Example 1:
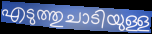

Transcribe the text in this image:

എടുത്തുചാടിയുള്ള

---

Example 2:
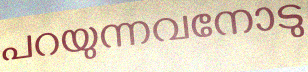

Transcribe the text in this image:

പറയുന്നവനോടു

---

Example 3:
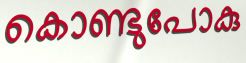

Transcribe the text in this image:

കൊണ്ടുപോകു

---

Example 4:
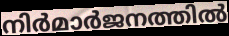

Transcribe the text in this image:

നിർമാർജനത്തിൽ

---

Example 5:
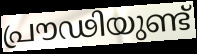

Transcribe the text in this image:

പ്രൗഢിയുണ്ട്